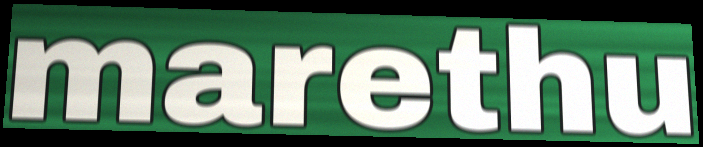
marethu